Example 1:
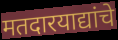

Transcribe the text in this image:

मतदारयाद्यांचे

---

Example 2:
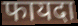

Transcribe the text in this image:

फायदा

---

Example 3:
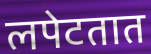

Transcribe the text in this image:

लपेटतात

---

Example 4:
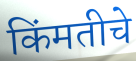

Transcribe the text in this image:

किंमतीचे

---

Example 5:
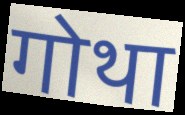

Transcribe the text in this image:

गोथा